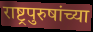
राष्ट्रपुरुषांच्या